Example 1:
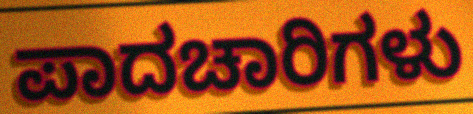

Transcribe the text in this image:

ಪಾದಚಾರಿಗಳು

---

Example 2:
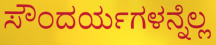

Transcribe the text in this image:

ಸೌಂದರ್ಯಗಳನ್ನೆಲ್ಲ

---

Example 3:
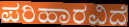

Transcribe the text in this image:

ಪರಿಹಾರವಿದೆ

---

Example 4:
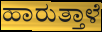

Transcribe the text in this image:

ಹಾರುತ್ತಾಳೆ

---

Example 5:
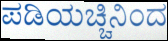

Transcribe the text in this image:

ಪಡಿಯಚ್ಚಿನಿಂದ